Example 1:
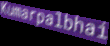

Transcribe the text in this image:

Kumarpalbhai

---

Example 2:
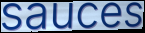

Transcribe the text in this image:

sauces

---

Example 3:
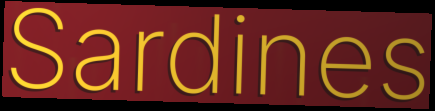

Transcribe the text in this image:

Sardines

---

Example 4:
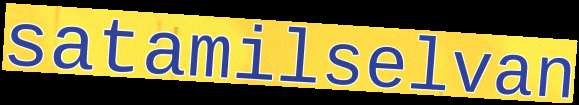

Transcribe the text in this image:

satamilselvan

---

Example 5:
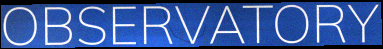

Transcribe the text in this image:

OBSERVATORY